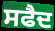
ਸਫੈਦ